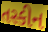
તસ્કીન